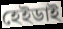
হেইডাই